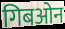
गिबओन